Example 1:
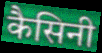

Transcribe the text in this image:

कैसिनी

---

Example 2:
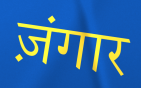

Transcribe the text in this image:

ज़ंगार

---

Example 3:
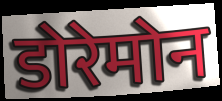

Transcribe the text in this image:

डोरेमोन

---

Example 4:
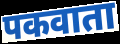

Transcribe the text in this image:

पकवाता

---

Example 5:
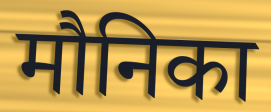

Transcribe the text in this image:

मौनिका